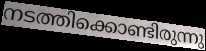
നടത്തിക്കൊണ്ടിരുന്നു